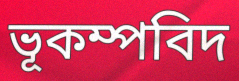
ভূকম্পবিদ